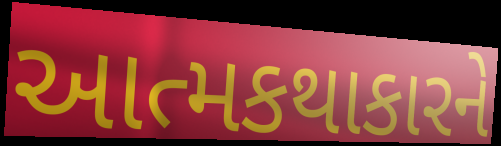
આત્મકથાકારને